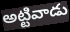
అట్టివాడు